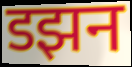
डझन